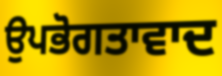
ਉਪਭੋਗਤਾਵਾਦ